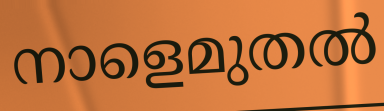
നാളെമുതൽ